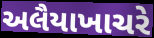
અલૈયાખાચરે